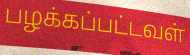
பழக்கப்பட்டவள்